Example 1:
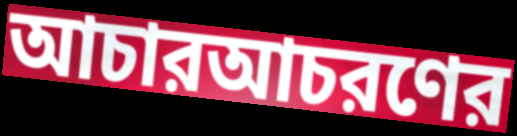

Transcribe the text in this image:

আচারআচরণের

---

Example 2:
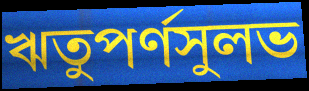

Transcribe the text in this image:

ঋতুপর্ণসুলভ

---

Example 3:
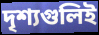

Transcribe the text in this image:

দৃশ্যগুলিই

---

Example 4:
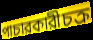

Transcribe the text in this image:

পাচারকারীচক্র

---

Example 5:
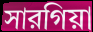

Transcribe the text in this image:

সারগিয়া